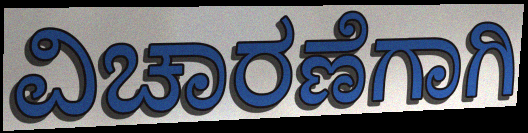
ವಿಚಾರಣೆಗಾಗಿ